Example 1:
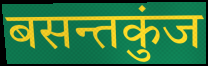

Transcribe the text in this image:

बसन्तकुंज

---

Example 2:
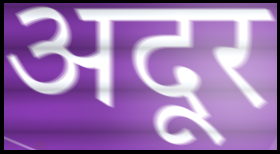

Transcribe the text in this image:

अदूर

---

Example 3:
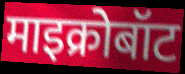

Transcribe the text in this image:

माइक्रोबॉट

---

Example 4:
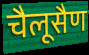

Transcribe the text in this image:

चैलूसैण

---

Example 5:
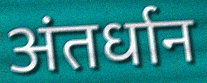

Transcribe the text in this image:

अंतर्धान